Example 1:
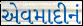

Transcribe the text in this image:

એવમાદીનં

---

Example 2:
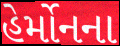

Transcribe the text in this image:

હેર્મોનના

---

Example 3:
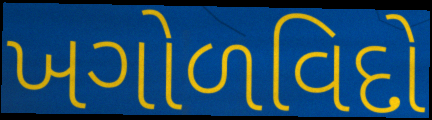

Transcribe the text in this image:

ખગોળવિદો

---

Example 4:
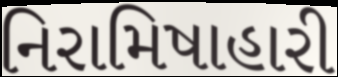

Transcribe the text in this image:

નિરામિષાહારી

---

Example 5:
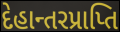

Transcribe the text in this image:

દેહાન્તરપ્રાપ્તિ